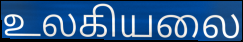
உலகியலை